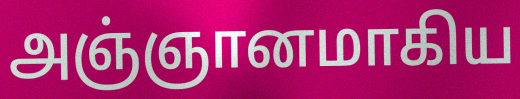
அஞ்ஞானமாகிய